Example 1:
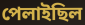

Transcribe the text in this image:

পেলাইছিল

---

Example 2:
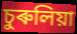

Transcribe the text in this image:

চুৰুলিয়া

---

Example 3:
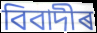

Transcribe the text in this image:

বিবাদীৰ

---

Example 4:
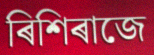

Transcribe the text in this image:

ৰিশিৰাজে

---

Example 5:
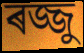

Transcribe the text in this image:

ৰজ্জু